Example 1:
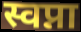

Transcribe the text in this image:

स्वप्ना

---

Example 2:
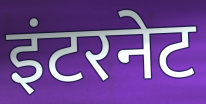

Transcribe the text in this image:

इंटरनेट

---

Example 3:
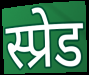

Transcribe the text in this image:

स्प्रेड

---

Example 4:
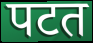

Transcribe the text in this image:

पटत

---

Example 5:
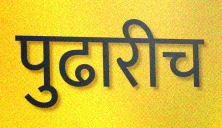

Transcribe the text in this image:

पुढारीच